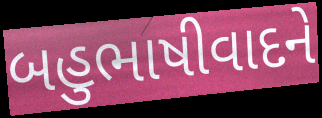
બહુભાષીવાદને